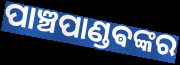
ପାଞ୍ଚପାଣ୍ଡଵଙ୍କର